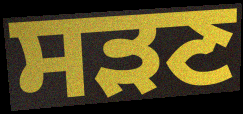
ਸੜਣ